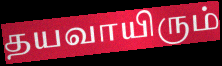
தயவாயிரும்